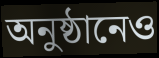
অনুষ্ঠানেও